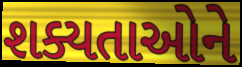
શક્યતાઓને